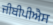
ਜੀਬੀਪੀਐਸ